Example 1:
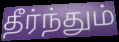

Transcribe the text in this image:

தீர்ந்தும்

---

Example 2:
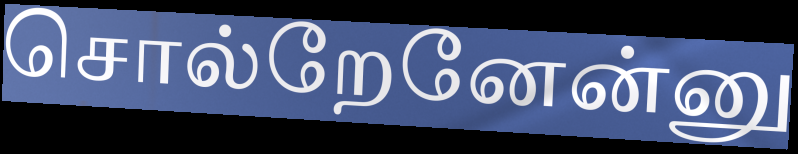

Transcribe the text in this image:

சொல்றேனேன்னு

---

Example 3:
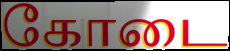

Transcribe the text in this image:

கோடை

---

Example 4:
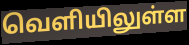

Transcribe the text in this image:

வெளியிலுள்ள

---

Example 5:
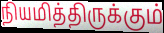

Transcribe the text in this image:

நியமித்திருக்கும்